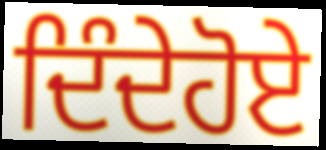
ਦਿੰਦੇਹੋਏ